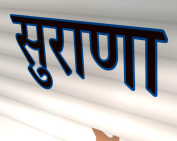
सुराणा